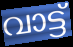
വാട്ട്